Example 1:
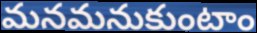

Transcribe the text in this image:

మనమనుకుంటాం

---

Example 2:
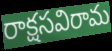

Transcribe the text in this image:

రాక్షసవిరామ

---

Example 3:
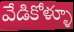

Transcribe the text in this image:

వేడికోళ్ళూ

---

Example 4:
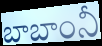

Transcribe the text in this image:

బాబాంనీ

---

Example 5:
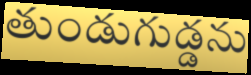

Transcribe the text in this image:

తుండుగుడ్డను